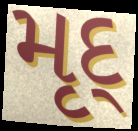
મૃદ્